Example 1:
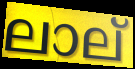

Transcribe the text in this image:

ലാല്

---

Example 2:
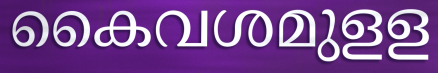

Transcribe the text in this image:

കൈവശമുളള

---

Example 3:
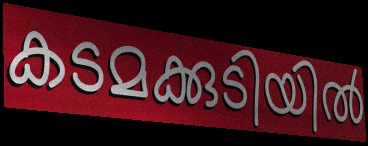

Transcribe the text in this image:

കടമക്കുടിയിൽ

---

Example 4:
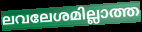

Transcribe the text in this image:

ലവലേശമില്ലാത്ത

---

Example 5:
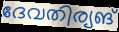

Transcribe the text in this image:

ദേവതിര്യങ്